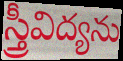
స్త్రీవిద్యను